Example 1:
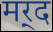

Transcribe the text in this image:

मर्द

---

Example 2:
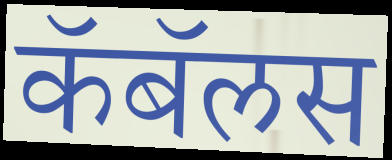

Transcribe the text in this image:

कॅबॅलस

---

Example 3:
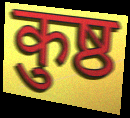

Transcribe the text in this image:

कुष्ठ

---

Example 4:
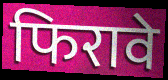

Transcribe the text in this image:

फिरावे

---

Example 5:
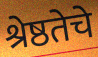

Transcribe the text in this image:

श्रेष्ठतेचे